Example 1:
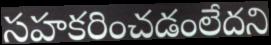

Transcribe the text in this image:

సహకరించడంలేదని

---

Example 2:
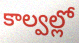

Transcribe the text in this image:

కాల్వల్లో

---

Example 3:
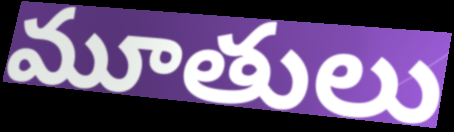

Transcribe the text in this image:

మూతులు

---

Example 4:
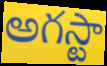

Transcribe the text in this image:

అగస్టా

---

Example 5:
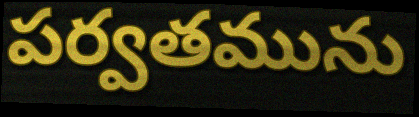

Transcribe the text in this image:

పర్వతమును